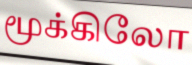
மூக்கிலோ